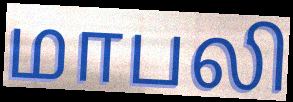
மாபலி